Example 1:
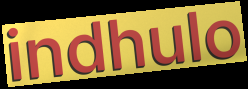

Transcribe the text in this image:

indhulo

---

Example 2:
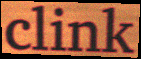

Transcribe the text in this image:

clink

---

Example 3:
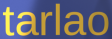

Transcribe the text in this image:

tarlao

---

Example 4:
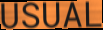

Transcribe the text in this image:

USUAL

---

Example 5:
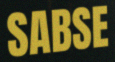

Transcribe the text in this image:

SABSE